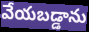
వేయబడ్డాను